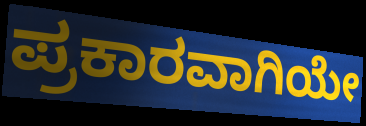
ಪ್ರಕಾರವಾಗಿಯೇ